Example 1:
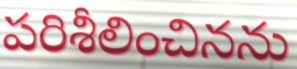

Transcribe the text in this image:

పరిశీలించినను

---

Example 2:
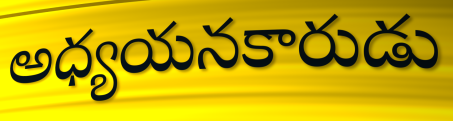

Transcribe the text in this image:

అధ్యయనకారుడు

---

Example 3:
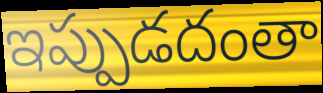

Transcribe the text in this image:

ఇప్పుడదంతా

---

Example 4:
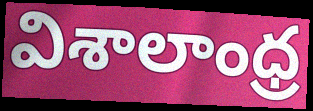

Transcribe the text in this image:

విశాలాంధ్ర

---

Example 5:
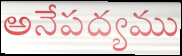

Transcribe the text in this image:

అనేపద్యము